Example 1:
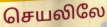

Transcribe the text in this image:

செயலிலே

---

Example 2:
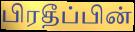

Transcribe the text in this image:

பிரதீப்பின்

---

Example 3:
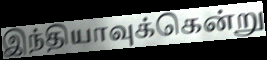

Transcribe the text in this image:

இந்தியாவுக்கென்று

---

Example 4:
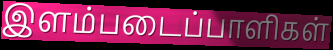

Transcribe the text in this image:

இளம்படைப்பாளிகள்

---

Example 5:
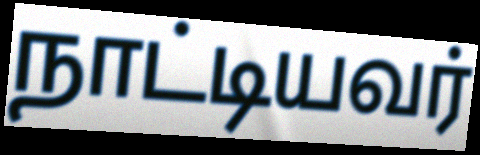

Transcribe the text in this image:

நாட்டியவர்